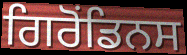
ਗਿਰੋਂਡਿਨਸ